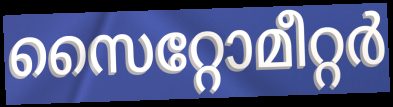
സൈറ്റോമീറ്റർ